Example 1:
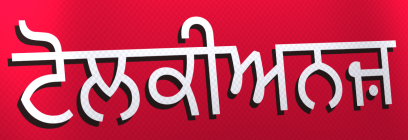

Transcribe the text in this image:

ਟੋਲਕੀਅਨਜ਼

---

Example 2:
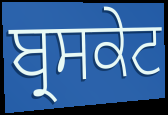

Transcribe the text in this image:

ਬ੍ਰਸਕੇਟ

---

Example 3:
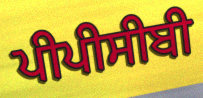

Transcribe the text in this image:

ਪੀਪੀਸੀਬੀ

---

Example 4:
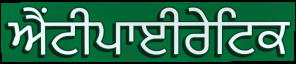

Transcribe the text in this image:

ਐਂਟੀਪਾਈਰੇਟਿਕ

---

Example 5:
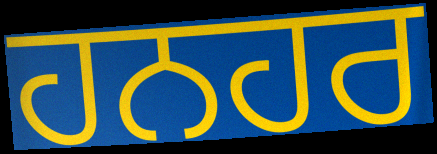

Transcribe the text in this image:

ਹਨਹਰ